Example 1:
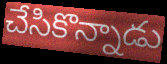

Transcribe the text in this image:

చేసికొన్నాడు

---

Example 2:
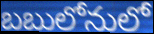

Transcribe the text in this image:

బబులోనులో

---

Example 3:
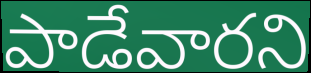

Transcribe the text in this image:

పాడేవారని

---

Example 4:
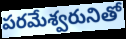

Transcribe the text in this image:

పరమేశ్వరునితో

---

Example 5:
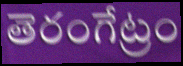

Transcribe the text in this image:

తెరంగేట్రం